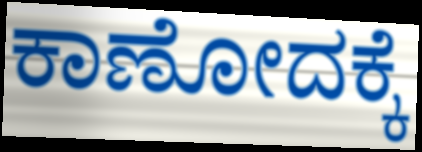
ಕಾಣೋದಕ್ಕೆ